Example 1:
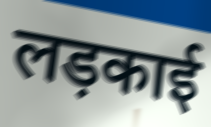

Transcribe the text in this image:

लड़काई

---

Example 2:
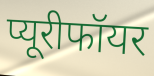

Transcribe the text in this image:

प्यूरीफॉयर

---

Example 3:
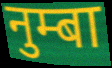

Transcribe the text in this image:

नुम्बा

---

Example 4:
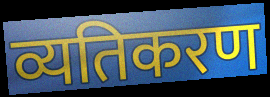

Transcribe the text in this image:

व्यतिकरण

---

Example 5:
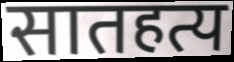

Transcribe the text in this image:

सातहत्य